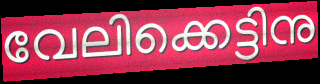
വേലിക്കെട്ടിനു